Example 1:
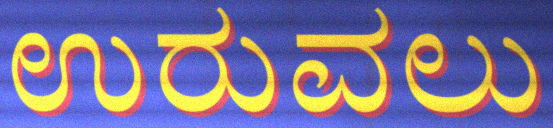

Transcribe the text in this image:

ಉರುವಲು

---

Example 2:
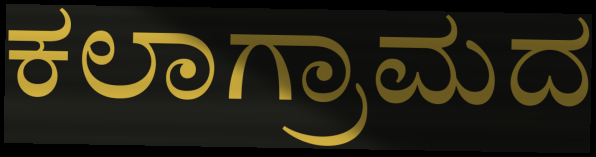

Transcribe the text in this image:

ಕಲಾಗ್ರಾಮದ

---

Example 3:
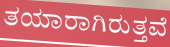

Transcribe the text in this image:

ತಯಾರಾಗಿರುತ್ತವೆ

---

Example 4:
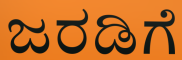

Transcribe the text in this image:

ಜರಡಿಗೆ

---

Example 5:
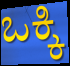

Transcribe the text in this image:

ಒಕ್ಕಿ